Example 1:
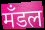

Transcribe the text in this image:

मँडल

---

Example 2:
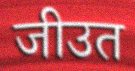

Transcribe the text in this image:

जीउत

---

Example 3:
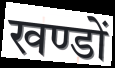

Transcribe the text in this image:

खण्डों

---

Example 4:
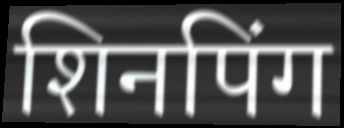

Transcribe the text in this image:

शिनपिंग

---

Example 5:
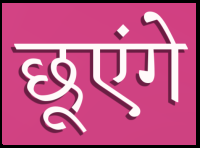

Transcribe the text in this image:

छूएंगे